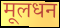
मूलधन